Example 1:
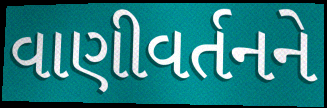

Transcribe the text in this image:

વાણીવર્તનને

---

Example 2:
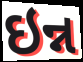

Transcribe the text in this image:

ઇન્ન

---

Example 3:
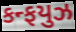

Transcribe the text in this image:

કન્ફયુઝ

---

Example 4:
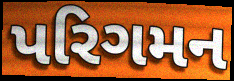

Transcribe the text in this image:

પરિગમન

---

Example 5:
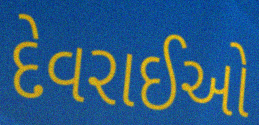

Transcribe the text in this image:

દેવરાઈઓ